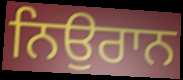
ਨਿਉਰਾਨ